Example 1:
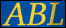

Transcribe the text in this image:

ABL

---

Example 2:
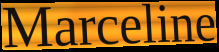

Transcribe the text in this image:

Marceline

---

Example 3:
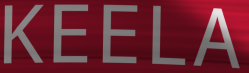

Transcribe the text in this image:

KEELA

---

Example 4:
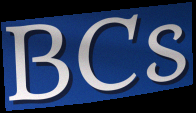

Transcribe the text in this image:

BCs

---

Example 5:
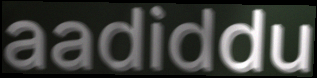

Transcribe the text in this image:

aadiddu